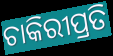
ଚାକିରୀପ୍ରତି